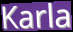
Karla